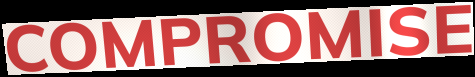
COMPROMISE